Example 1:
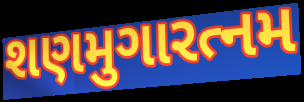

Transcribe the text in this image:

શણમુગારત્નમ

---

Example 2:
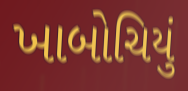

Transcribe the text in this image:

ખાબોચિયું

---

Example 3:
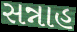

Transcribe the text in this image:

સન્નાહ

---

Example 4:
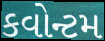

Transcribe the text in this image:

કવોન્ટમ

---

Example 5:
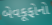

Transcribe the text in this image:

બેવકૂફોનો